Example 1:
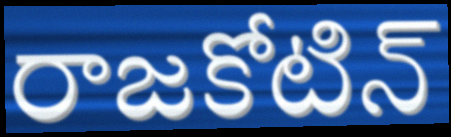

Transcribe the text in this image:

రాజకోటిన్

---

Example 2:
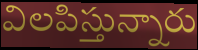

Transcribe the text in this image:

విలపిస్తున్నారు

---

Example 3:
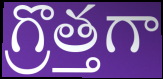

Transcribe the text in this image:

గ్రొత్తగా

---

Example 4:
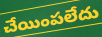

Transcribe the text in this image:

చేయింపలేదు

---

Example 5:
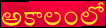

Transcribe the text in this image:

అకాలంలో